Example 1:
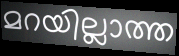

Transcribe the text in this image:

മറയില്ലാത്ത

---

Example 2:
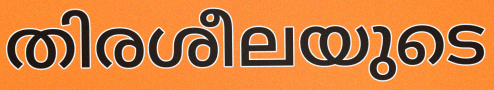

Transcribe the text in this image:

തിരശീലയുടെ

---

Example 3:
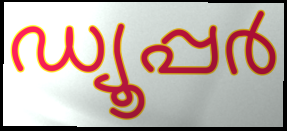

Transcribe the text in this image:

ഡ്യൂപ്പർ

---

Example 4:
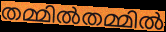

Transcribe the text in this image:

തമ്മിൽതമ്മിൽ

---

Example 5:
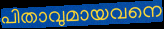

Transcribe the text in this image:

പിതാവുമായവനെ